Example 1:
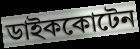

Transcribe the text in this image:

ডাইককোটেন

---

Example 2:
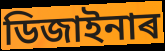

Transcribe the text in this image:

ডিজাইনাৰ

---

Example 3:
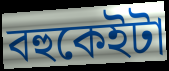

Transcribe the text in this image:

বহুকেইটা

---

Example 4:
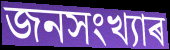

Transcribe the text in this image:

জনসংখ্যাৰ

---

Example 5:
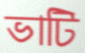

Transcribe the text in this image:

ভাটি